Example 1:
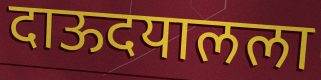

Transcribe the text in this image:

दाऊदयालला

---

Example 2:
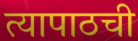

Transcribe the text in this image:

त्यापाठची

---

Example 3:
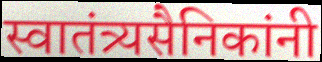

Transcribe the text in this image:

स्वातंत्र्यसैनिकांनी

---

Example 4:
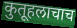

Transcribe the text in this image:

कुतूहलाचाच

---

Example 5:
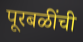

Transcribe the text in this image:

पूरबळींची